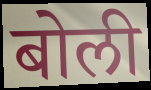
बोली